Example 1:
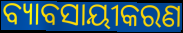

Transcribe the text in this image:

ବ୍ୟାବସାୟୀକରଣ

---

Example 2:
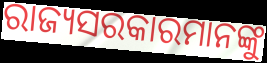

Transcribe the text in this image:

ରାଜ୍ୟସରକାରମାନଙ୍କୁ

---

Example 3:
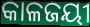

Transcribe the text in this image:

କାଳଜୟୀ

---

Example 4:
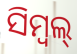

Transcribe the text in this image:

ସିମ୍ବଲ୍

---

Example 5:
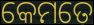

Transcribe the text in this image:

କେମତେ